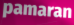
pamaran